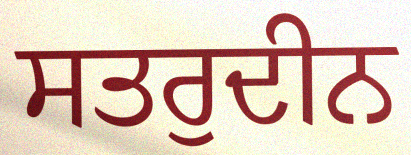
ਸਤਰੁਦੀਨ